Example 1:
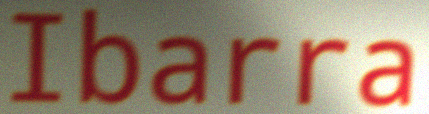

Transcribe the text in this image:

Ibarra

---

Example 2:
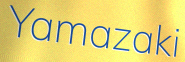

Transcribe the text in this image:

Yamazaki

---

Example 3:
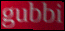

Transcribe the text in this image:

gubbi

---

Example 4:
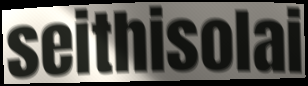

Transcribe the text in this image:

seithisolai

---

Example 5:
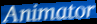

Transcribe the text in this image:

Animator